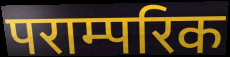
पराम्परिक